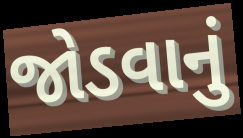
જોડવાનું